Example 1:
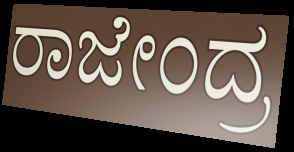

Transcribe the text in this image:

ರಾಜೇಂದ್ರ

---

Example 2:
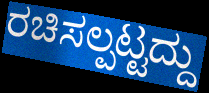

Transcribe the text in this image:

ರಚಿಸಲ್ಪಟ್ಟದ್ದು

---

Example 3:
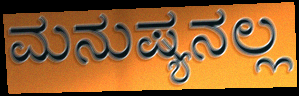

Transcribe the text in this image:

ಮನುಷ್ಯನಲ್ಲ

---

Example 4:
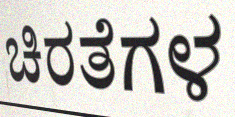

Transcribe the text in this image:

ಚಿರತೆಗಳ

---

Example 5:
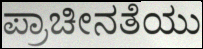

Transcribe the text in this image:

ಪ್ರಾಚೀನತೆಯು